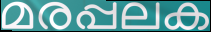
മരപ്പലക